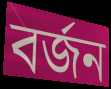
বৰ্জন